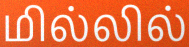
மில்லில்